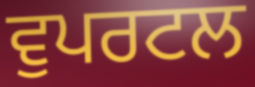
ਵੁਪਰਟਲ